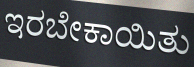
ಇರಬೇಕಾಯಿತು